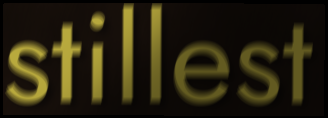
stillest